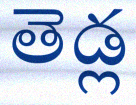
తెడ్ల